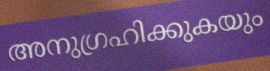
അനുഗ്രഹിക്കുകയും